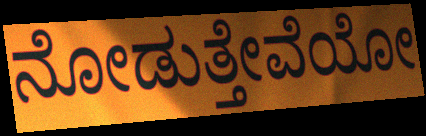
ನೋಡುತ್ತೇವೆಯೋ